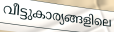
വീട്ടുകാര്യങ്ങളിലെ